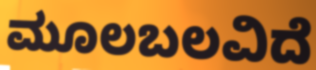
ಮೂಲಬಲವಿದೆ